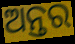
ଅନ୍ତର